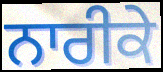
ਨਾਰੀਕੇ